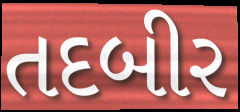
તદબીર